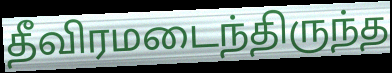
தீவிரமடைந்திருந்த